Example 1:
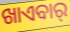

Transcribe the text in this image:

ଖାଏବାର୍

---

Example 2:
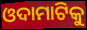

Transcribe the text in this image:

ଓଦାମାଟିକୁ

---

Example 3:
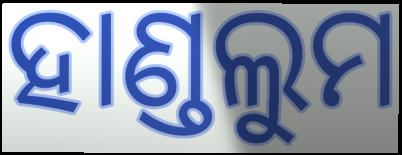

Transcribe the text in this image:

ହାଣ୍ଡଲୁମ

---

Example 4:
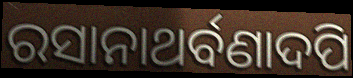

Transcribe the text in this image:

ରସାନାଥର୍ବଣାଦପି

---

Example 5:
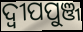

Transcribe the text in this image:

ଦ୍ଵୀପପୁଞ୍ଜ